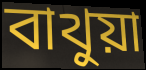
বাথুয়া